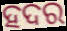
ହଦର